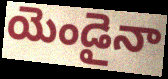
యెండైనా